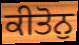
ਕੀਤੋਨੁ